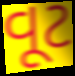
વૂટ